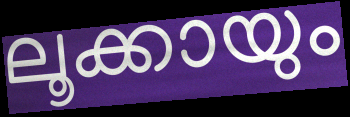
ലൂക്കായും